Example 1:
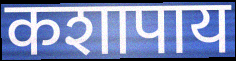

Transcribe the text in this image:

कशापाय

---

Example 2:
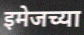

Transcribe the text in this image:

इमेजच्या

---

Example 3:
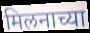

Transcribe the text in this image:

मिलनाच्या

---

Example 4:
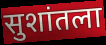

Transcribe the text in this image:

सुशांतला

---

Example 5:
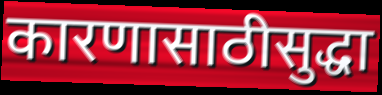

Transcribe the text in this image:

कारणासाठीसुद्धा